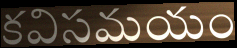
కవిసమయం